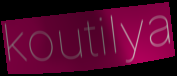
koutilya